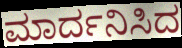
ಮಾರ್ದನಿಸಿದ